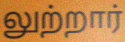
லுற்றார்